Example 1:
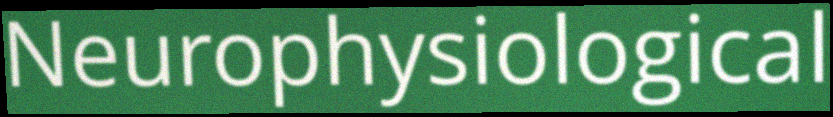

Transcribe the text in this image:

Neurophysiological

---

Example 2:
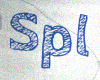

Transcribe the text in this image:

Spl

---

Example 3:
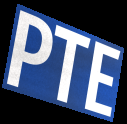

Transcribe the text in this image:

PTE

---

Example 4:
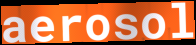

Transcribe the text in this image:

aerosol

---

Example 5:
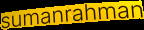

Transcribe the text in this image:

sumanrahman